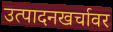
उत्पादनखर्चावर